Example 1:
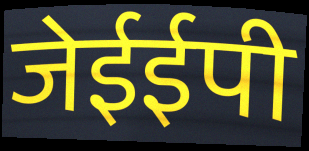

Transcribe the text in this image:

जेईईपी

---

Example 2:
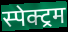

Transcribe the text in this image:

स्पेक्ट्रम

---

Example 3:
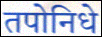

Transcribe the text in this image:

तपोनिधे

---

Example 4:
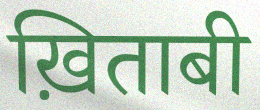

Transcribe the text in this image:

ख़िताबी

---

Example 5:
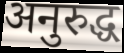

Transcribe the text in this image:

अनुरुद्ध